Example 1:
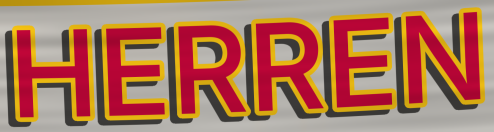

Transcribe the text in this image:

HERREN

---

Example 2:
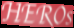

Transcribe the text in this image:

HEROs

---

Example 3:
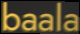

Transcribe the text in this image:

baala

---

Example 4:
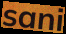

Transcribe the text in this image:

sani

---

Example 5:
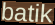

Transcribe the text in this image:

batik